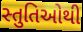
સ્તુતિઓથી